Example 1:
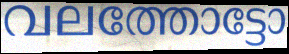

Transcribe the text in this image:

വലത്തോട്ടോ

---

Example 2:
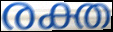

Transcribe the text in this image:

രക്ത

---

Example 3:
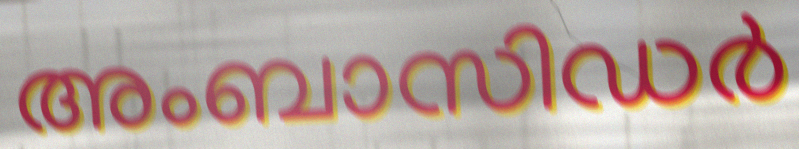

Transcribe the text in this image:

അംബാസിഡർ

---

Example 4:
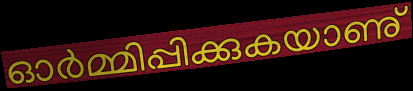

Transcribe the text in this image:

ഓർമ്മിപ്പിക്കുകയാണു്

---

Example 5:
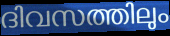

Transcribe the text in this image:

ദിവസത്തിലും